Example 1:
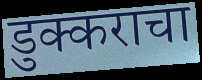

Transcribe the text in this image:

डुक्कराचा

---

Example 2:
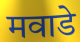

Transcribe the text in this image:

मवाडे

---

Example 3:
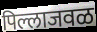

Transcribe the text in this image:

पिल्लाजवळ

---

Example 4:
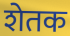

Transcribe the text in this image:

शेतक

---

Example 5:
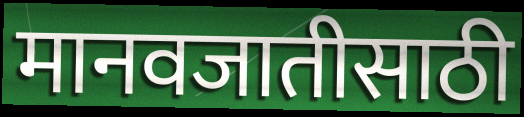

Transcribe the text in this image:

मानवजातीसाठी